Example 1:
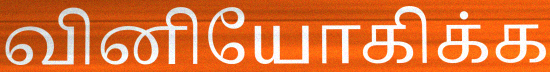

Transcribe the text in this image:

வினியோகிக்க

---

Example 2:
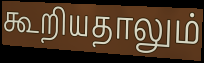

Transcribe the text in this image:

கூறியதாலும்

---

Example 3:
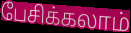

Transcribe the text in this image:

பேசிக்கலாம்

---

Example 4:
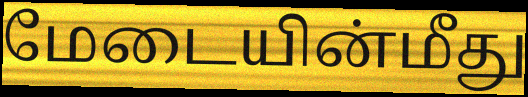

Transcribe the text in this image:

மேடையின்மீது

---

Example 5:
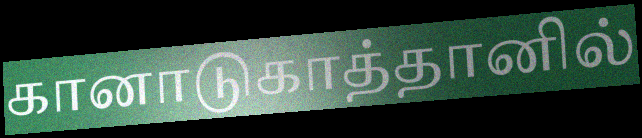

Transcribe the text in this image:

கானாடுகாத்தானில்